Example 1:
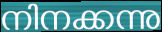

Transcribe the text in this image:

നിനക്കന്നു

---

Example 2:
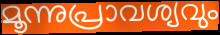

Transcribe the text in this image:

മൂന്നുപ്രാവശ്യവും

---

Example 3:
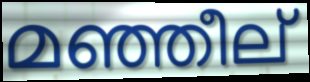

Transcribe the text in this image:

മഞ്ഞീല്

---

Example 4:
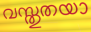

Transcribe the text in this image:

വസ്തുതയാ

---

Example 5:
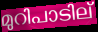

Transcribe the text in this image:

മുറിപാടില്